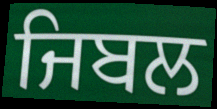
ਜਿਬਲ